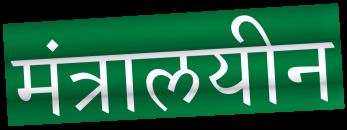
मंत्रालयीन